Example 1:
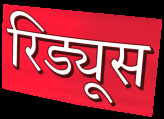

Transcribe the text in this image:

रिड्यूस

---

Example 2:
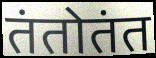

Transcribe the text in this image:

तंतोतंत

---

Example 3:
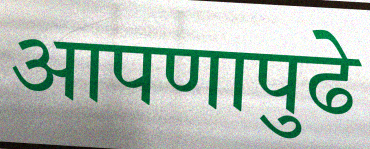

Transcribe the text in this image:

आपणापुढे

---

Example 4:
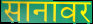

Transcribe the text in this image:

सानावर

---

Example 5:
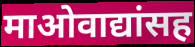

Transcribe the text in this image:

माओवाद्यांसह